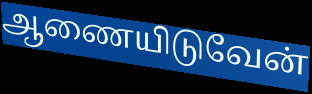
ஆணையிடுவேன்